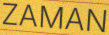
ZAMAN